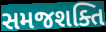
સમજશક્તિ